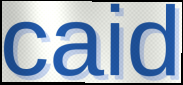
caid